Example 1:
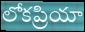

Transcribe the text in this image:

లోకప్రియా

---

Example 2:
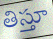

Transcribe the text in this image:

తిస్తూ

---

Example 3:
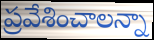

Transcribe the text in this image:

ప్రవేశించాలన్నా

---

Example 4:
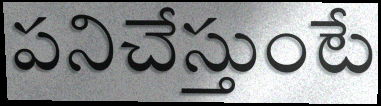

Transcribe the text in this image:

పనిచేస్తుంటే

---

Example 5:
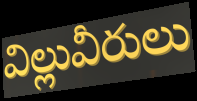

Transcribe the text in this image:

విల్లువీరులు